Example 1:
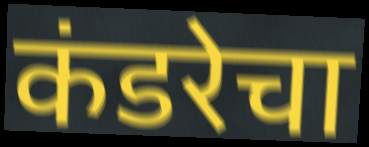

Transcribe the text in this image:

कंडरेचा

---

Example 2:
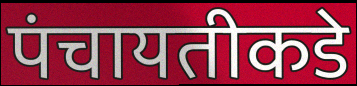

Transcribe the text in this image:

पंचायतीकडे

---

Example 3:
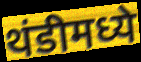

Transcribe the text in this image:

थंडीमध्ये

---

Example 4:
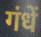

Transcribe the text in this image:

गंधें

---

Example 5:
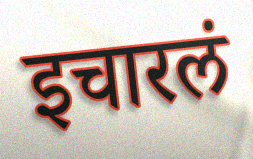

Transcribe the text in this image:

इचारलं